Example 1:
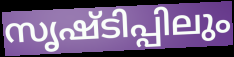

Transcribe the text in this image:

സൃഷ്ടിപ്പിലും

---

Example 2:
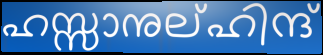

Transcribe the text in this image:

ഹസ്സാനുല്ഹിന്ദ്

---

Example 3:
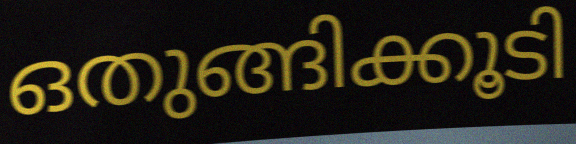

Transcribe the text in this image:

ഒതുങ്ങിക്കൂടി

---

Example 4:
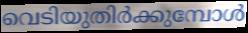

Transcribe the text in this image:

വെടിയുതിർക്കുമ്പോൾ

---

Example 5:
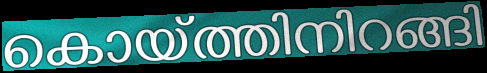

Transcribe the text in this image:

കൊയ്ത്തിനിറങ്ങി